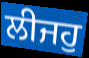
ਲੀਜਹੁ